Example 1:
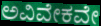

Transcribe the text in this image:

ಅವಿವೇಕವೇ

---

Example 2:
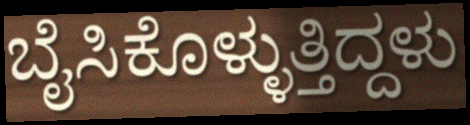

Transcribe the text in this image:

ಬೈಸಿಕೊಳ್ಳುತ್ತಿದ್ದಳು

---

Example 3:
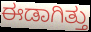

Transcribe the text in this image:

ಈಡಾಗಿತ್ತು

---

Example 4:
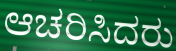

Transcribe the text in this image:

ಆಚರಿಸಿದರು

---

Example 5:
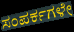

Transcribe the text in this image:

ಸಂಪರ್ಕಗಳೇ